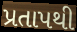
પ્રતાપથી